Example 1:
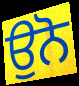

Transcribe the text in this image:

ਉਨੋ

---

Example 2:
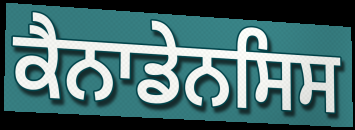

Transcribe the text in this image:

ਕੈਨਾਡੇਨਸਿਸ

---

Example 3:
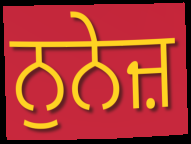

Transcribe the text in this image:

ਨੁਨੇਜ਼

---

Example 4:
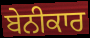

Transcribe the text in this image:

ਬੇਨੀਕਾਰ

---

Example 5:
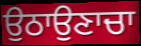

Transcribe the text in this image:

ਉਠਾਉਣਾਚਾ